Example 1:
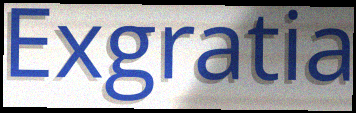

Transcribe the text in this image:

Exgratia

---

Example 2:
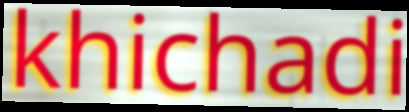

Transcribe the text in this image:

khichadi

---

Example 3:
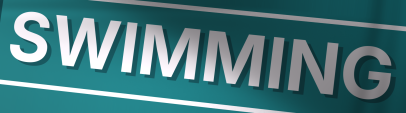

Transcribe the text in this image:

SWIMMING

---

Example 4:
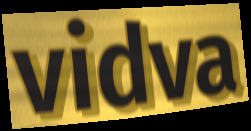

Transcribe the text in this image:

vidva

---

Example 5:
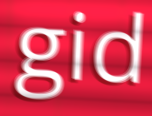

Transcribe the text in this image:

gid